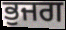
ਭੁਜਗ